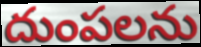
దుంపలను